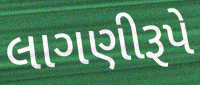
લાગણીરૂપે